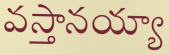
వస్తానయ్యా